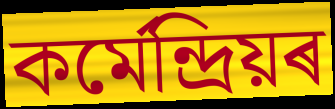
কৰ্মেন্দ্ৰিয়ৰ